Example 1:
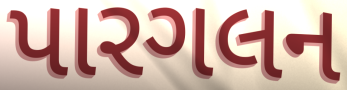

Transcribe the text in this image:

પારગલન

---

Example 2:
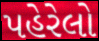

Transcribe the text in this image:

પહેરેલો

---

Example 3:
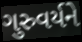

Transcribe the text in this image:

ગુરુવર્યને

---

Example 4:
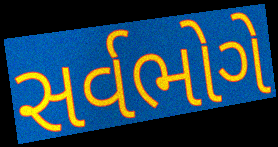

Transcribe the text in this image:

સર્વભોગે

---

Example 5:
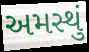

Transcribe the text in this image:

અમસ્થું